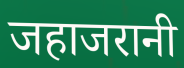
जहाजरानी